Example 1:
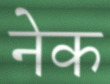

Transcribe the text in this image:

नेक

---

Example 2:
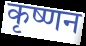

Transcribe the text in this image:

कृष्णन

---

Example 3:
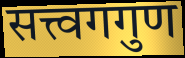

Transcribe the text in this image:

सत्त्वगगुण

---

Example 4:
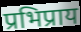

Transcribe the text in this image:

प्रभिप्राय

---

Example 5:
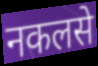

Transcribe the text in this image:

नकलसे